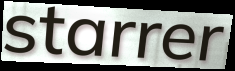
starrer